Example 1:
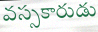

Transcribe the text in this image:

వస్సకారుడు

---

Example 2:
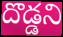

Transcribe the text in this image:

దొడ్డని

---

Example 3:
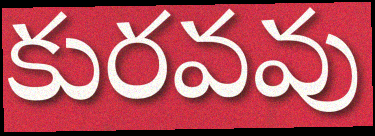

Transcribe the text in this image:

కురవవు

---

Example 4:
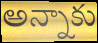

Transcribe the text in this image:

అన్నాకు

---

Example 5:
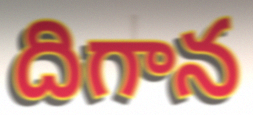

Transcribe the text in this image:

దిగాన